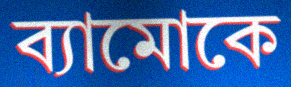
ব্যামোকে